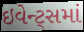
ઇવેન્ટ્સમાં